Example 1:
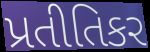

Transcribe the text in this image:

પ્રતીતિકર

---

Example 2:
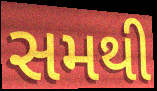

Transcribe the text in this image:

સમથી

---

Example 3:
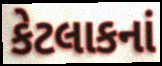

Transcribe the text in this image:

કેટલાકનાં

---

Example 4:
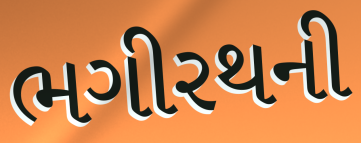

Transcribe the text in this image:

ભગીરથની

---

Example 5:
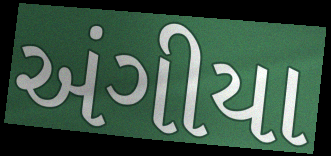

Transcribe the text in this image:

અંગીયા